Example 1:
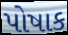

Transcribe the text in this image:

પોષાક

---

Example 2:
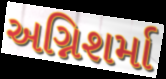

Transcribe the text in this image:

અગ્નિશર્મા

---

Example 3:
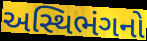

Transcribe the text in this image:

અસ્થિભંગનો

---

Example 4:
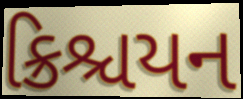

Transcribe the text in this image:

ક્રિશ્ચયન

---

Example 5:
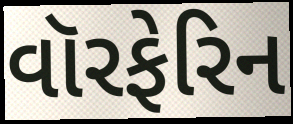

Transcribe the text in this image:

વૉરફેરિન